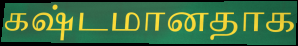
கஷ்டமானதாக